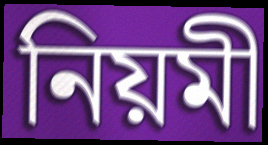
নিয়মী